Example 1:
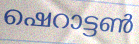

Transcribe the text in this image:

ഷെറാട്ടൺ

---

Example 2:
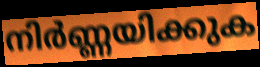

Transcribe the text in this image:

നിർണ്ണയിക്കുക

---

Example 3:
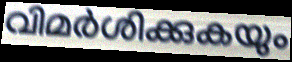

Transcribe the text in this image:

വിമർശിക്കുകയും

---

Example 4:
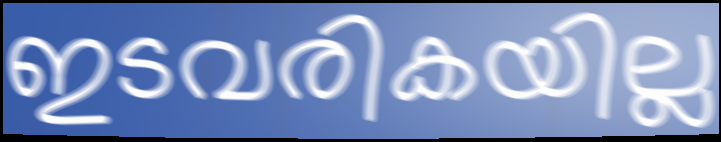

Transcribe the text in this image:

ഇടവരികയില്ല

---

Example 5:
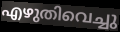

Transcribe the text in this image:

എഴുതിവെച്ചു